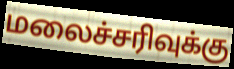
மலைச்சரிவுக்கு